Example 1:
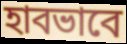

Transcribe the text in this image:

হাবভাবে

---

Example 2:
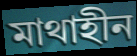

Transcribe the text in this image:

মাথাহীন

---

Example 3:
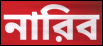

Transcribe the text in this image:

নারিব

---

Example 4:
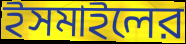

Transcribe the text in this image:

ইসমাইলের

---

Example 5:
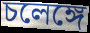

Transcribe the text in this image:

চলেঙ্গে